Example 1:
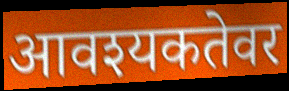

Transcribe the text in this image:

आवश्यकतेवर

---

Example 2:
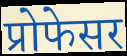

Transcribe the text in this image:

प्रोफेसर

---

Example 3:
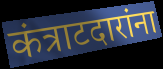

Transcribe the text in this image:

कंत्राटदारांना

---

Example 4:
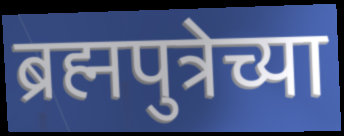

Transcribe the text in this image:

ब्रह्मपुत्रेच्या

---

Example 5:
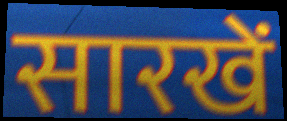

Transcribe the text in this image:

सारखें